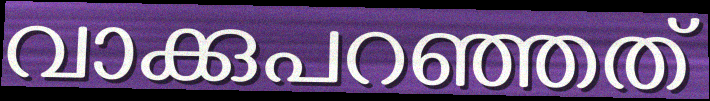
വാക്കുപറഞ്ഞത്